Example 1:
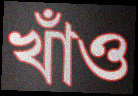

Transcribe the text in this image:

খাঁও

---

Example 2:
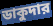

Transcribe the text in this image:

ডাকুদার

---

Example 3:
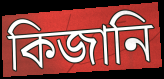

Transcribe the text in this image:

কিজানি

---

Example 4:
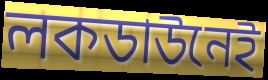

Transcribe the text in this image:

লকডাউনেই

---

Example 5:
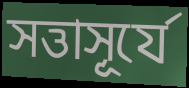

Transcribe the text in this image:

সত্তাসূর্যে